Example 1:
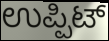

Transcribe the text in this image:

ಉಪ್ಪಿಟ್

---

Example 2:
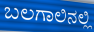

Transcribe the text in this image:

ಬಲಗಾಲಿನಲ್ಲಿ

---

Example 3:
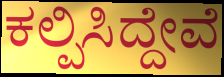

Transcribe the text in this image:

ಕಲ್ಪಿಸಿದ್ದೇವೆ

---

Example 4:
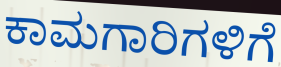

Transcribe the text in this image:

ಕಾಮಗಾರಿಗಳಿಗೆ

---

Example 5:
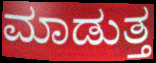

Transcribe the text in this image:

ಮಾಡುತ್ತ